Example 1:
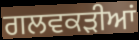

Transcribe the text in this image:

ਗਲਵਕੜੀਆਂ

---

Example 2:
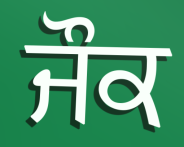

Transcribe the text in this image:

ਜੌਕ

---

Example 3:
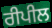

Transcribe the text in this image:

ਰੀਪੀਲ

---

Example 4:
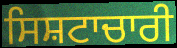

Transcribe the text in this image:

ਸਿਸ਼ਟਾਚਾਰੀ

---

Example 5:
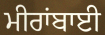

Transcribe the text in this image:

ਮੀਰਾਂਬਾਈ